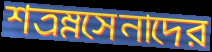
শত্রম্নসেনাদের